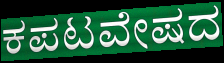
ಕಪಟವೇಷದ